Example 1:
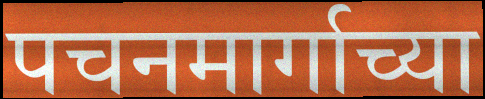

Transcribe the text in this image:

पचनमार्गाच्या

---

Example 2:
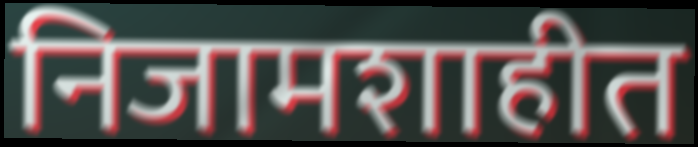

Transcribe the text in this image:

निजामशाहीत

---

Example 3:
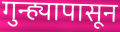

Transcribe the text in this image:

गुन्ह्यापासून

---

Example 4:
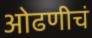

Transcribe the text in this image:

ओढणीचं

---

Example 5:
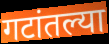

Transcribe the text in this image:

गटांतल्या